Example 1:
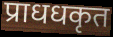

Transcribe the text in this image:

प्राधधकृत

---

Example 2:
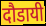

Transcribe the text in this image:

दौडायी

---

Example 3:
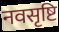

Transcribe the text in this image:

नवसृष्टि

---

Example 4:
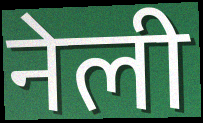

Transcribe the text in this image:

नेली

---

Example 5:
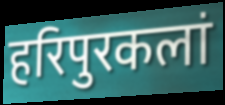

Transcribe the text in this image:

हरिपुरकलां